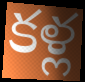
కళ్ల